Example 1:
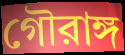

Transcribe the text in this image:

গৌরাঙ্গ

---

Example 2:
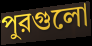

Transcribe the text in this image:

পুরগুলো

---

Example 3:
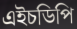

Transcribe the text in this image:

এইচডিপি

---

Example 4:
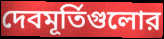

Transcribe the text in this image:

দেবমূর্তিগুলোর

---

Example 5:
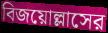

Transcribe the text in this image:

বিজয়োল্লাসের